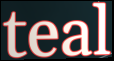
teal